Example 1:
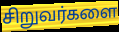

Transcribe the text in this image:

சிறுவர்களை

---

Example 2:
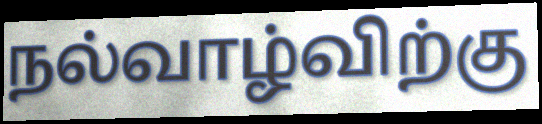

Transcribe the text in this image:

நல்வாழ்விற்கு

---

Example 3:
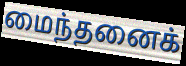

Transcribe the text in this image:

மைந்தனைக்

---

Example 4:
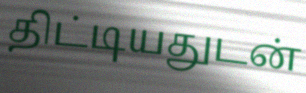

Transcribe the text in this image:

திட்டியதுடன்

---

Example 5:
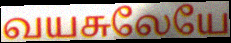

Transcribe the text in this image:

வயசுலேயே